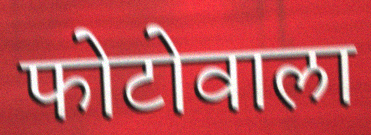
फोटोवाला